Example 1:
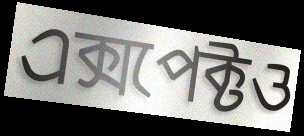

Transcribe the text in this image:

এক্সপেক্টও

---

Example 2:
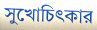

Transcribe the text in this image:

সুখোচিৎকার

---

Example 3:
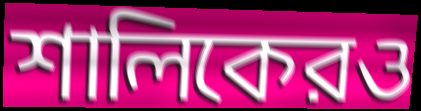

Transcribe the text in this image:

শালিকেরও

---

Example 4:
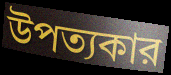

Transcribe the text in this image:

উপত্যকার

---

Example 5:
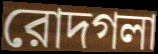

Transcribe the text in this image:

রোদগলা